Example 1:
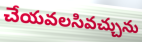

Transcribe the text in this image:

చేయవలసివచ్చును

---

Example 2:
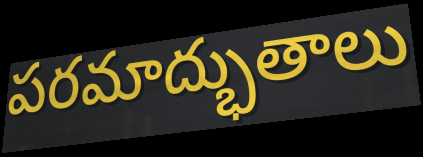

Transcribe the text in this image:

పరమాద్భుతాలు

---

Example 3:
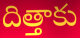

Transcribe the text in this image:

దిత్తాకు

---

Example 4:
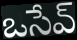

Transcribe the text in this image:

ఒసేవ్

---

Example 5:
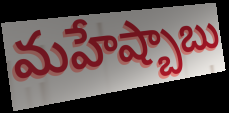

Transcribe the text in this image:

మహేష్బాబు